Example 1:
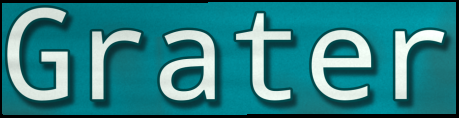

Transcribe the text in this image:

Grater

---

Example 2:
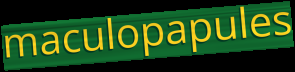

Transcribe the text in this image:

maculopapules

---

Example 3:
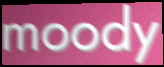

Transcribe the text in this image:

moody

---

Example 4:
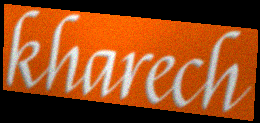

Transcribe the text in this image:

kharech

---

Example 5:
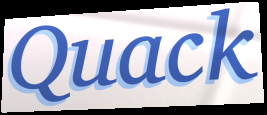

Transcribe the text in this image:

Quack